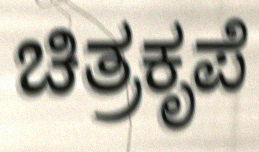
ಚಿತ್ರಕೃಪೆ